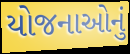
યોજનાઓનું